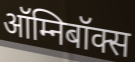
ऑम्निबॉक्स